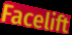
Facelift